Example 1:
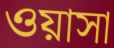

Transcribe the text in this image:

ওয়াসা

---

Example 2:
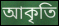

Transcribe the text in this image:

আকৃতি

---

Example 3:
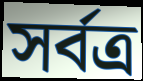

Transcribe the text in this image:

সর্বত্র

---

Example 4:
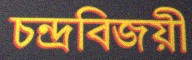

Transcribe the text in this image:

চন্দ্রবিজয়ী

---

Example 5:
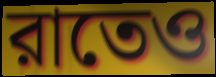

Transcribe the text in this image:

রাতেও